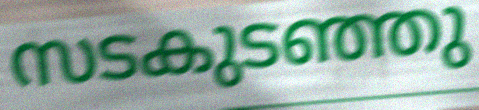
സടകുടഞ്ഞു